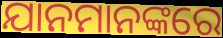
ଯାନମାନଙ୍କରେ